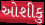
ઓશીકુ